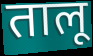
तालू